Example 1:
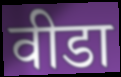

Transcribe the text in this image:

वीडा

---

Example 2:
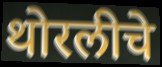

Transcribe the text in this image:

थोरलीचे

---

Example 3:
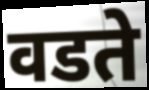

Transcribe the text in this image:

वडते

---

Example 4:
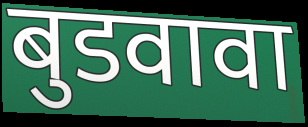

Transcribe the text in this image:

बुडवावा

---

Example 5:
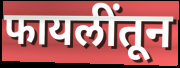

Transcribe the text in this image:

फायलींतून